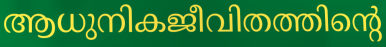
ആധുനികജീവിതത്തിന്റെ